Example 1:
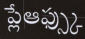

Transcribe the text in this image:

ప్లేఆఫ్స్కు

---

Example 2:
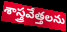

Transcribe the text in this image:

శాస్త్రవేత్తలను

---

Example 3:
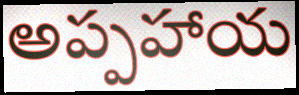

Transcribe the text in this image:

అప్పహాయ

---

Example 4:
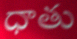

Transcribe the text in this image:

ధాతు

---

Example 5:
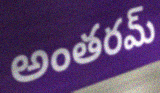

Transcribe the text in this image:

అంతరమ్